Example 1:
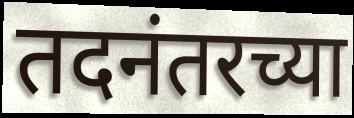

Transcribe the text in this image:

तदनंतरच्या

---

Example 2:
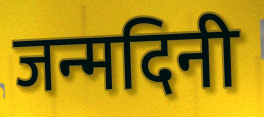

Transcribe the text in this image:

जन्मदिनी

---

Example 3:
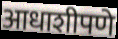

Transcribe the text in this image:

आधाशीपणे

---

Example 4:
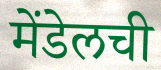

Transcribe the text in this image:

मेंडेलची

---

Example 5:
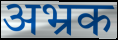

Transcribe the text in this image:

अभ्रक